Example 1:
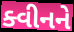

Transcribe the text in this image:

ક્વીનને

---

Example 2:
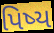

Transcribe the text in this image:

પિષ્ય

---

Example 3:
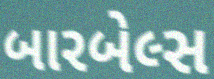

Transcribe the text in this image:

બારબેલ્સ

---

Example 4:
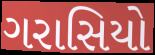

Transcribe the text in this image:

ગરાસિયો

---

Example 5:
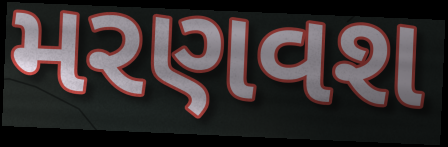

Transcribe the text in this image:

મરણવશ